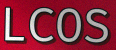
LCOS